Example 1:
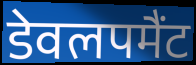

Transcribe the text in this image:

डेवलपमैंट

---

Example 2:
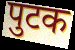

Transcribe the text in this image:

पुटक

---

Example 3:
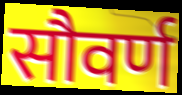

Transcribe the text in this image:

सौवर्ण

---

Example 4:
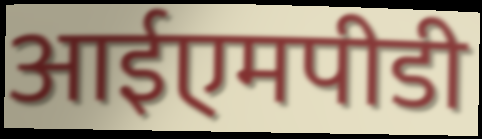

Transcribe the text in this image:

आईएमपीडी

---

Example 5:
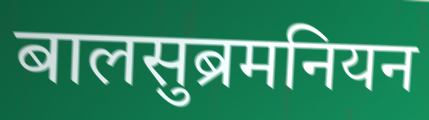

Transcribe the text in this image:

बालसुब्रमनियन